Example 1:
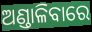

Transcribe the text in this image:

ଅଣ୍ଡାଳିବାରେ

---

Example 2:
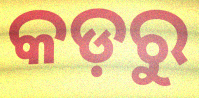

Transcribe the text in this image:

କଡ଼ରୁ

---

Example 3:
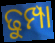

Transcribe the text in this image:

ଢୁମ୍ପା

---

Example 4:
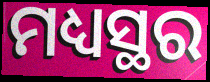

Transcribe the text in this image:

ମଧ୍ୟସ୍ଥର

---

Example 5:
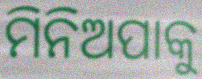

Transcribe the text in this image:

ମିନିଅପାକୁ